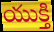
యుక్తి